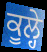
ਕੂਲ੍ਹੇ